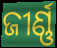
ଜୀର୍ଣ୍ଣ